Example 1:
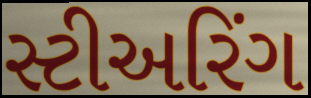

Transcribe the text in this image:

સ્ટીઅરિંગ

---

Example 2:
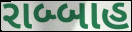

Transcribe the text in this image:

રાબ્બાહ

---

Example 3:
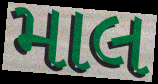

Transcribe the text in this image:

માલ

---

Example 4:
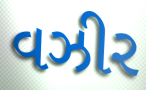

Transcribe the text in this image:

વઝીર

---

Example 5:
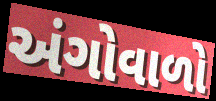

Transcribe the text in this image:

અંગોવાળો